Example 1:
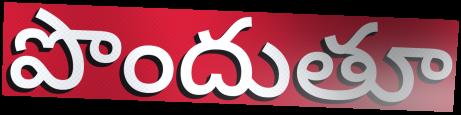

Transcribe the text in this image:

పొందుతూ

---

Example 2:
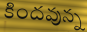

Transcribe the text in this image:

కిందవున్న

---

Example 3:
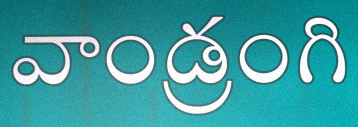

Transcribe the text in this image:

వాండ్రంగి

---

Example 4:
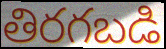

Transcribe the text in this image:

తిరగబడి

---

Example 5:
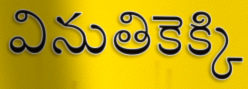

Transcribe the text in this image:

వినుతికెక్కి